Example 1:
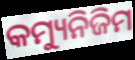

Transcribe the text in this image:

କମ୍ୟୁନିଜିମ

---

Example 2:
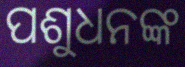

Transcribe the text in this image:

ପଶୁଧନଙ୍କ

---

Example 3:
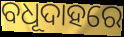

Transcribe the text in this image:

ବଧୂଦାହରେ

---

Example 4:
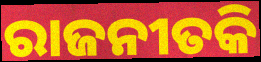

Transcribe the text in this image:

ରାଜନୀତକି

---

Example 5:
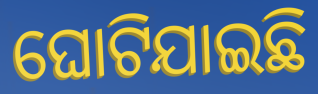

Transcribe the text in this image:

ଘୋଟିଯାଇଛି